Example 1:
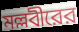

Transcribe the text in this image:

মল্লবীরের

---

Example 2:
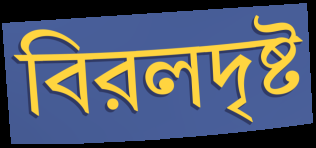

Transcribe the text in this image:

বিরলদৃষ্ট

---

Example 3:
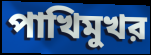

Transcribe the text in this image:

পাখিমুখর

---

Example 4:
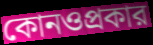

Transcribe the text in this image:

কোনওপ্রকার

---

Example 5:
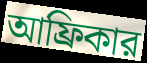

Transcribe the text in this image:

আফ্রিকার